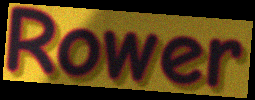
Rower